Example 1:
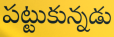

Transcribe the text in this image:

పట్టుకున్నడు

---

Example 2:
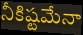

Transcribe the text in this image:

నీకిష్టమేనా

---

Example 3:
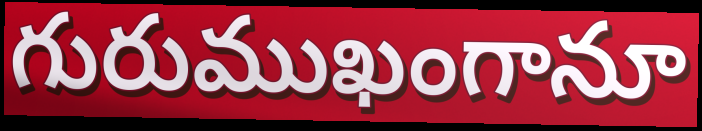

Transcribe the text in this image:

గురుముఖంగానూ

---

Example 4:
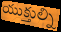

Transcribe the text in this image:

యుక్తుల్ని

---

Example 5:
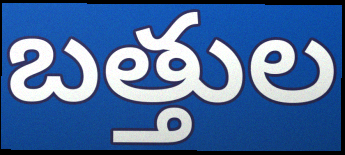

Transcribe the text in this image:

బత్తుల